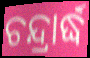
ଚନ୍ଦ୍ରାର୍ଦ୍ଧ